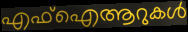
എഫ്ഐആറുകൾ